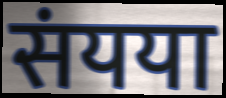
संयया